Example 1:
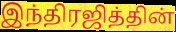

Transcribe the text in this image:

இந்திரஜித்தின்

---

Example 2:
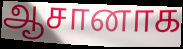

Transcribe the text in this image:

ஆசானாக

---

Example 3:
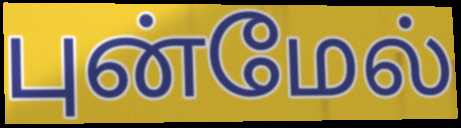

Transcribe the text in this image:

புன்மேல்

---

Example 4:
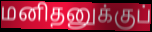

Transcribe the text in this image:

மனிதனுக்குப்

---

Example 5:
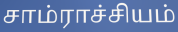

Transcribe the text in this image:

சாம்ராச்சியம்